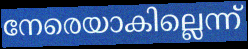
നേരെയാകില്ലെന്ന്